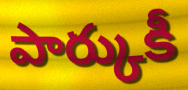
పార్కుకీ